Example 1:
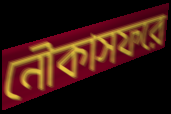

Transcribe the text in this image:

নৌকাসফরে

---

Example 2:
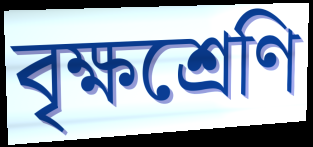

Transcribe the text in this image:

বৃক্ষশ্রেণি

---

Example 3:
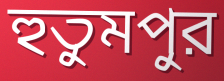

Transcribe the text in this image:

হুতুমপুর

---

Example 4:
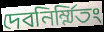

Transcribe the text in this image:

দেবনির্ম্মিতং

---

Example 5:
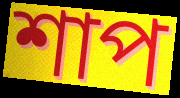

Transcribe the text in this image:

শাপ